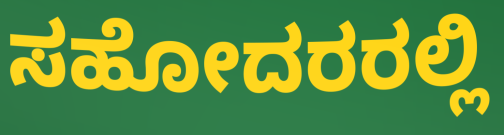
ಸಹೋದರರಲ್ಲಿ